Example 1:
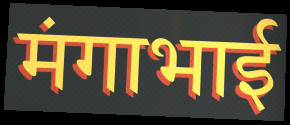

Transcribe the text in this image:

मंगाभाई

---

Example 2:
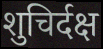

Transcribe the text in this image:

शुचिर्दक्ष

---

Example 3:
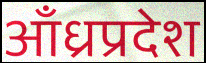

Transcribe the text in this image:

आँध्रप्रदेश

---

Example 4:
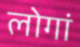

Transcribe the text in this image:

लोगां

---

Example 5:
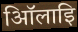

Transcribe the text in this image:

ऑिलाइि